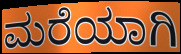
ಮರೆಯಾಗಿ